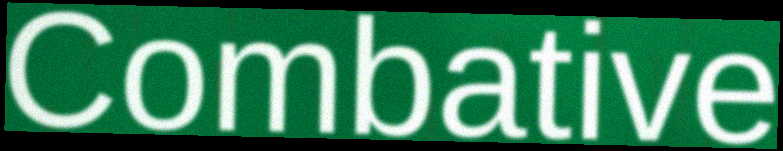
Combative